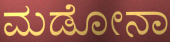
ಮಡೋನಾ